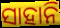
ସାହାନି